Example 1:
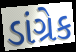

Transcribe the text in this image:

ડાંગ્રેક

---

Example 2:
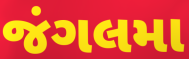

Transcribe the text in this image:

જંગલમા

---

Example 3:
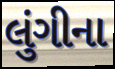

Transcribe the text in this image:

લુંગીના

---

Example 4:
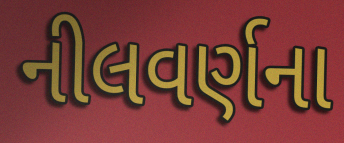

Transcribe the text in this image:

નીલવર્ણના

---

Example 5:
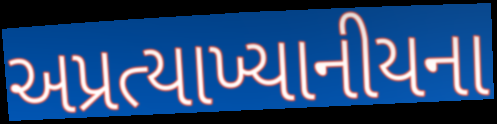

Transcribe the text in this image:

અપ્રત્યાખ્યાનીયના